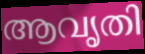
ആവൃതി